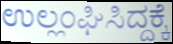
ಉಲ್ಲಂಘಿಸಿದ್ದಕ್ಕೆ